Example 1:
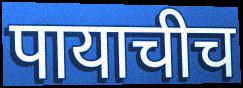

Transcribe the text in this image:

पायाचीच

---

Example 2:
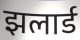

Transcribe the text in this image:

झलार्ड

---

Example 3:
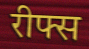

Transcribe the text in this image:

रीफ्स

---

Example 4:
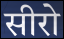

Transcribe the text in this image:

सीरो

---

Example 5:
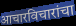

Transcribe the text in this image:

आचारविचारांचा